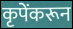
कृपेंकरून